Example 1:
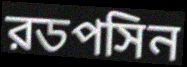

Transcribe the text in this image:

রডপসিন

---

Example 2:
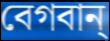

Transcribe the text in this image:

বেগবান্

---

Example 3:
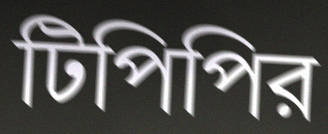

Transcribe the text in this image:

টিপিপির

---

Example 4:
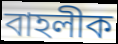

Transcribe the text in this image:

বাহলীক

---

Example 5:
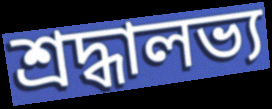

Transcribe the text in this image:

শ্রদ্ধালভ্য